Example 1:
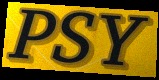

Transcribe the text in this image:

PSY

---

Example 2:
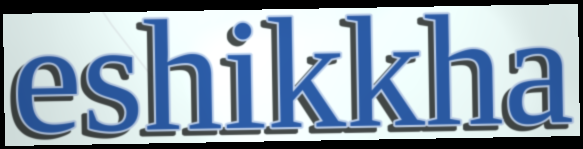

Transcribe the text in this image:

eshikkha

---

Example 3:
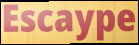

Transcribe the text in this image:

Escaype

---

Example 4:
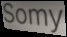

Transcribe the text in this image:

Somy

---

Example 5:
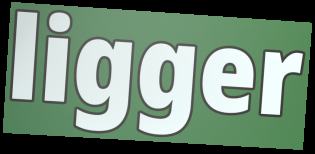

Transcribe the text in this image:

ligger